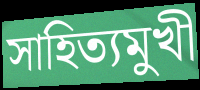
সাহিত্যমুখী